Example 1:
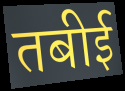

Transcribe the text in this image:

तबीई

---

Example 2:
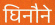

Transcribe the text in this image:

घिनौने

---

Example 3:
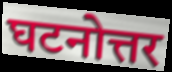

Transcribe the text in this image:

घटनोत्तर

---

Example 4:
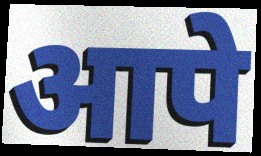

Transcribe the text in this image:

आपे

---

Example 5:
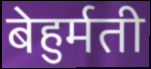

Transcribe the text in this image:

बेहुर्मती